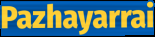
Pazhayarrai